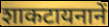
शाकटायनानें